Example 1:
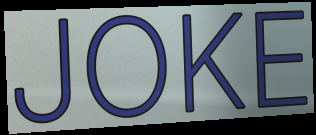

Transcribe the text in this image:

JOKE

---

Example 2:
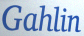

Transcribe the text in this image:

Gahlin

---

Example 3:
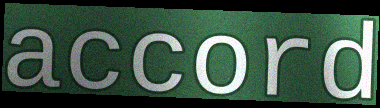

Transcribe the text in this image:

accord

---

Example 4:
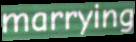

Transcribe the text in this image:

marrying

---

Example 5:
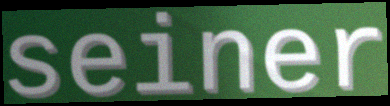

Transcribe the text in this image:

seiner